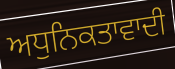
ਅਧੁਨਿਕਤਾਵਾਦੀ